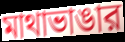
মাথাভাঙার